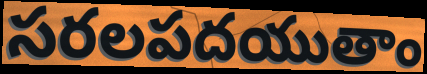
సరలపదయుతాం